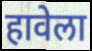
हावेला